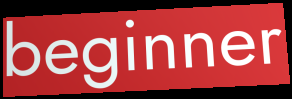
beginner